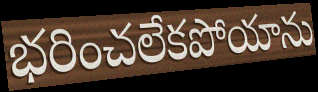
భరించలేకపోయాను